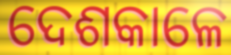
ଦେଶକାଳେ